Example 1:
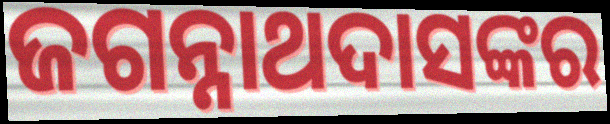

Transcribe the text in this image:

ଜଗନ୍ନାଥଦାସଙ୍କର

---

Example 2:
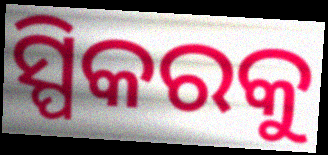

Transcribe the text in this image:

ସ୍ପିକରକୁ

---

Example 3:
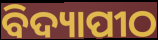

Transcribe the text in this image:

ବିଦ୍ୟାପୀଠ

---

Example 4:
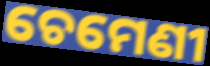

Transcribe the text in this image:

ଚେମେଣୀ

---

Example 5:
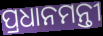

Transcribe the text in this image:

ପ୍ରଧାନମନ୍ତୀ